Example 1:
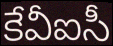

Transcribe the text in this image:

కేవీఐసీ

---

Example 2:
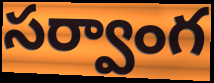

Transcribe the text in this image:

సర్వాంగ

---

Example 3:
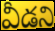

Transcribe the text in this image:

వీడని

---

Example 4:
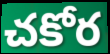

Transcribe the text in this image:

చకోర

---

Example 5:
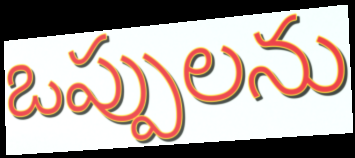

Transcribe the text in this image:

ఒప్పులను